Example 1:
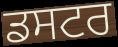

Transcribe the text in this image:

ਡਸਟਰ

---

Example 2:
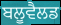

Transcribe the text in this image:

ਬਲੂਵੈਲਡ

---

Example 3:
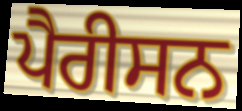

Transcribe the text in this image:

ਪੈਰੀਸਨ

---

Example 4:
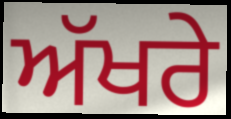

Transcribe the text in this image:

ਅੱਖਰੇ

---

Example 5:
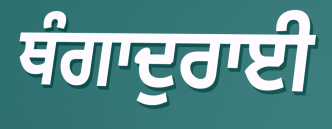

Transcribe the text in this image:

ਥੰਗਾਦੁਰਾਈ